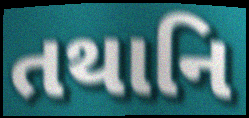
તથાનિ